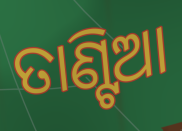
ତାଣ୍ଟିଆ